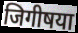
जिगीषया